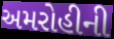
અમરોહીની